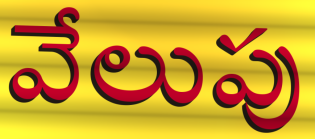
వేలుపు